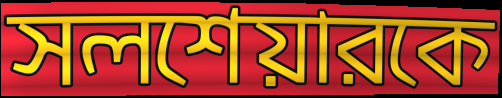
সলশেয়ারকে